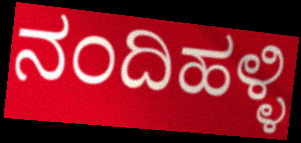
ನಂದಿಹಳ್ಳಿ